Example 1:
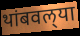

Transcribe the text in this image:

थांबवल्या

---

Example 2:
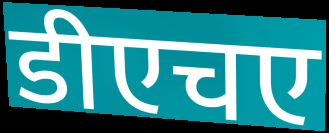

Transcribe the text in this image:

डीएचए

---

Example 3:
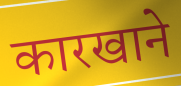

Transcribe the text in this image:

कारखाने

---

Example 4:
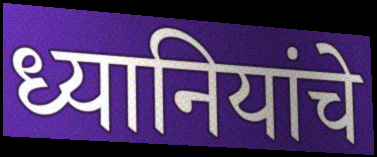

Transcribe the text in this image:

ध्यानियांचे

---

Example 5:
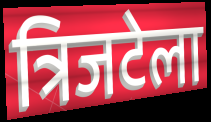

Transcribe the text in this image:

त्रिजटेला